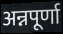
अन्नपूर्णा